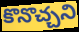
కొనొచ్చని